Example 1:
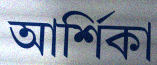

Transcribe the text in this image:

আর্শিকা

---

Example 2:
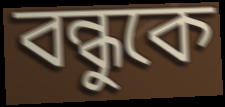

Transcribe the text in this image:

বন্ধুকে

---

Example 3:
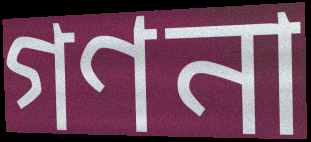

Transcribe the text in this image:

গণনা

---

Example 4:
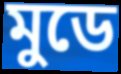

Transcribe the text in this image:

মুডে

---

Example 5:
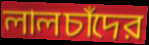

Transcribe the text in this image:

লালচাঁদের